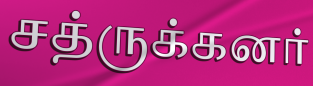
சத்ருக்கனர்